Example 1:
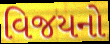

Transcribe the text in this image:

વિજયનો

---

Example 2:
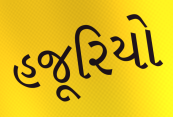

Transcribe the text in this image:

હજૂરિયો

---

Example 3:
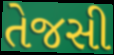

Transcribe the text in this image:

તેજસી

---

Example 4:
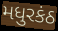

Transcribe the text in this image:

મધુરકંઠ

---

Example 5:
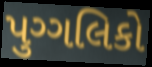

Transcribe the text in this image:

પુગ્ગલિકો